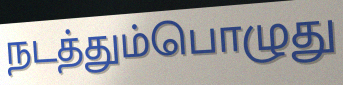
நடத்தும்பொழுது